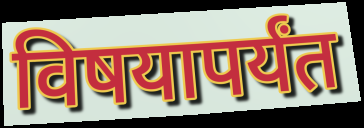
विषयापर्यंत